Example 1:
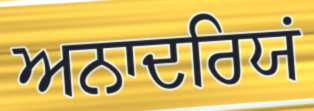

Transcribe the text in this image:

ਅਨਾਦਰਿਯਂ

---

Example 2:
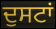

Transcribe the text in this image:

ਦੁਸਟਾਂ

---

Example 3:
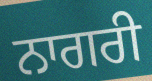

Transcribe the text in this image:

ਨਾਗਰੀ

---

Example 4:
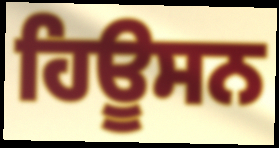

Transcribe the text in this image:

ਹਿਊਸਨ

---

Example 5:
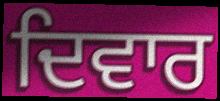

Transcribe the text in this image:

ਦਿਵਾਰ